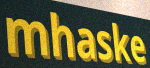
mhaske